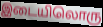
இடையிலொரு